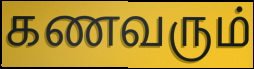
கணவரும்